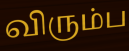
விரும்ப